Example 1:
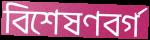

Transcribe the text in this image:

বিশেষণবর্গ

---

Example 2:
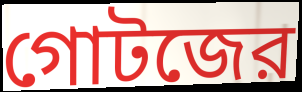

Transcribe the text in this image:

গোটজের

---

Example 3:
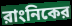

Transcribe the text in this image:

রাংনিকের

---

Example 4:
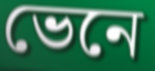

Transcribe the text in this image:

ভেনে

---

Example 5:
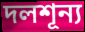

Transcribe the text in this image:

দলশূন্য